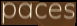
paces